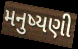
મનુષ્યણી